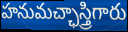
హనుమచ్ఛాస్త్రిగారు